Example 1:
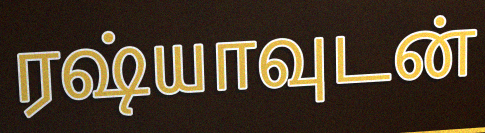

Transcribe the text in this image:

ரஷ்யாவுடன்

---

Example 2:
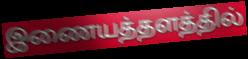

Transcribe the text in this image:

இணையத்தளத்தில்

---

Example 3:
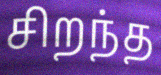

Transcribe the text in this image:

சிறந்த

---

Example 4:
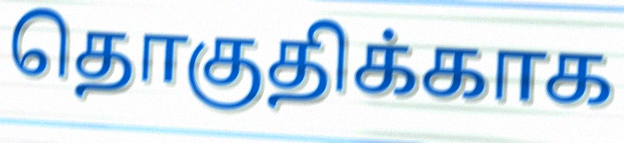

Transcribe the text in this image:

தொகுதிக்காக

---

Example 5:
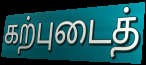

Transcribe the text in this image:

கற்புடைத்